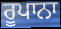
ਰੂਪਾਨਾ